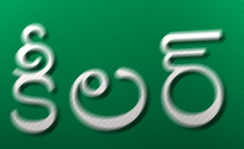
కీలర్